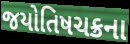
જયોતિષચક્રના